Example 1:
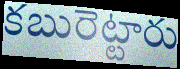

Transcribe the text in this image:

కబురెట్టారు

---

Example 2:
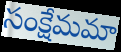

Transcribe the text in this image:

సంక్షేమమా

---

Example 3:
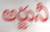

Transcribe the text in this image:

అర్జునీ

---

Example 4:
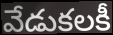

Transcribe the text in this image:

వేడుకలకీ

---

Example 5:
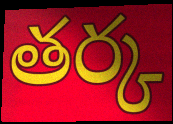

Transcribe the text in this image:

తర్క